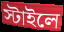
স্টাইলে